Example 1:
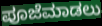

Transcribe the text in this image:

ಪೂಜೆಮಾಡಲು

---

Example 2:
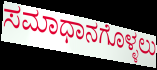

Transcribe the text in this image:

ಸಮಾಧಾನಗೊಳ್ಳಲು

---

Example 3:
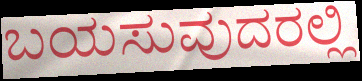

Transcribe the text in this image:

ಬಯಸುವುದರಲ್ಲಿ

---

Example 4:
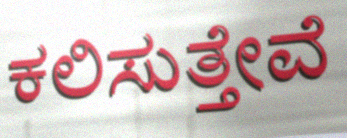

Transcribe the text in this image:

ಕಲಿಸುತ್ತೇವೆ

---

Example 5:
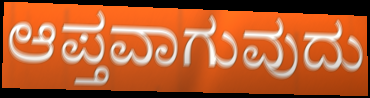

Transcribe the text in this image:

ಆಪ್ತವಾಗುವುದು